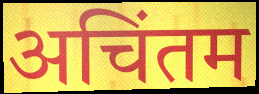
अचिंतम